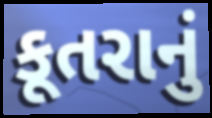
કૂતરાનું